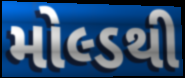
મોલ્ડથી